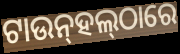
ଟାଉନ୍‌ହଲ୍‌ଠାରେ